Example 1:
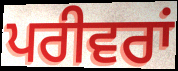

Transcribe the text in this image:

ਪਰੀਵਰਾਂ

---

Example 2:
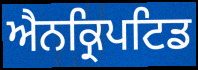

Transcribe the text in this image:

ਐਨਕ੍ਰਿਪਟਿਡ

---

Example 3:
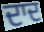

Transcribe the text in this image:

ਦਾਦ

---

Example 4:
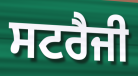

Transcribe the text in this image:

ਸਟਰੈਜੀ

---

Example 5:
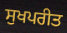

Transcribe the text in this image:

ਸੁਖਪਰੀਤ